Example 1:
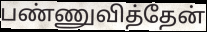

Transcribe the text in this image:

பண்ணுவித்தேன்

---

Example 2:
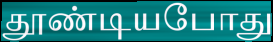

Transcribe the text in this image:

தூண்டியபோது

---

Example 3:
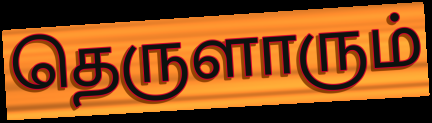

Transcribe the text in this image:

தெருளாரும்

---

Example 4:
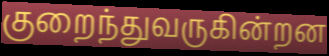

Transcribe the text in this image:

குறைந்துவருகின்றன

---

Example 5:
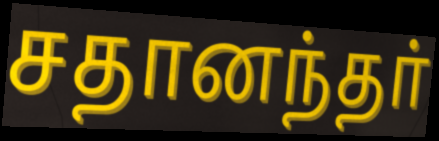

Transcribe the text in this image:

சதானந்தர்